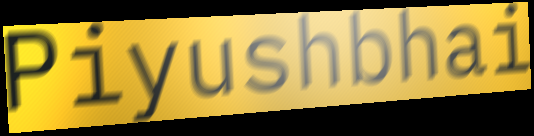
Piyushbhai